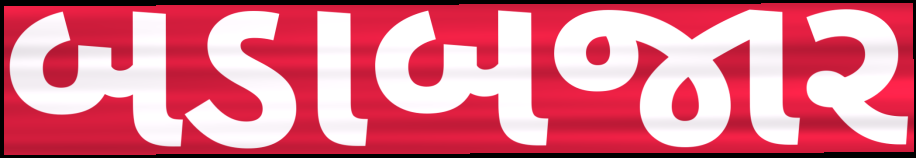
બડાબજાર